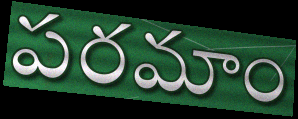
పరమాం